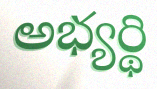
అభ్యర్థి